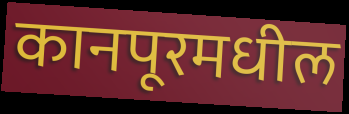
कानपूरमधील